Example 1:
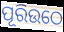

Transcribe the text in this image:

ପୂରିଉଠେ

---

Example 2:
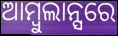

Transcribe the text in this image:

ଆମ୍ବୁଲାନ୍ସରେ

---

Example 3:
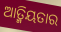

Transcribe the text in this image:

ଆତ୍ମିୟତାର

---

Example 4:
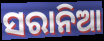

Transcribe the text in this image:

ସରାନିଆ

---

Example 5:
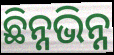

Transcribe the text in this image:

ଛିନ୍ନଭିନ୍ନ